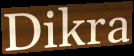
Dikra